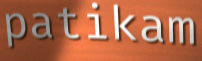
patikam